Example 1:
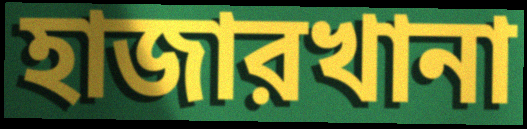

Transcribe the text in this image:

হাজারখানা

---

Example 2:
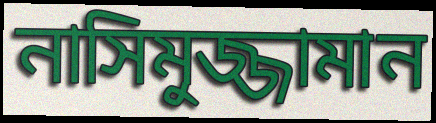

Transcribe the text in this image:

নাসিমুজ্জামান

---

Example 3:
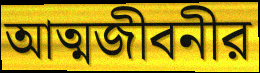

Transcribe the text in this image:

আত্মজীবনীর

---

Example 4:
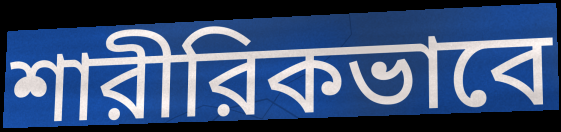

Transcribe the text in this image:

শারীরিকভাবে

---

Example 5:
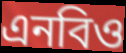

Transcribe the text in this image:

এনবিও